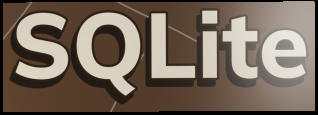
SQLite